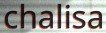
chalisa